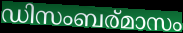
ഡിസംബര്മാസം